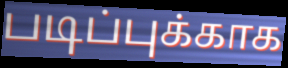
படிப்புக்காக